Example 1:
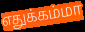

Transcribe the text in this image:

எதுக்கம்மா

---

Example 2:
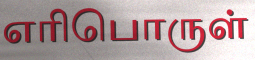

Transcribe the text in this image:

எரிபொருள்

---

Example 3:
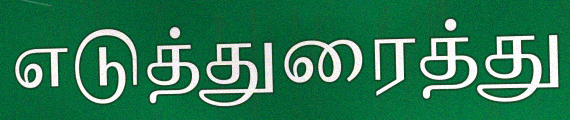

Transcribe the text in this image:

எடுத்துரைத்து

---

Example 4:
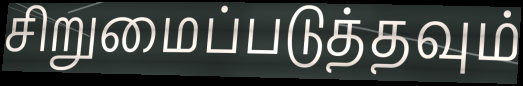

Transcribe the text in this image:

சிறுமைப்படுத்தவும்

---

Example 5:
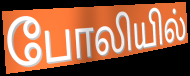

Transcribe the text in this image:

போலியில்